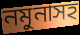
নমুনাসহ